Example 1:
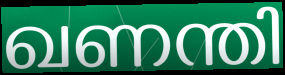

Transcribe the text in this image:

ഖണന്തി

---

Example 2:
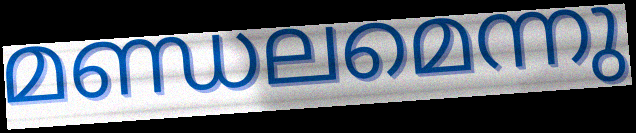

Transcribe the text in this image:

മണ്ഡലമെന്നു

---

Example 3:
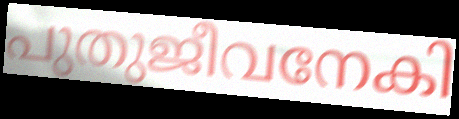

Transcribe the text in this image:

പുതുജീവനേകി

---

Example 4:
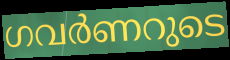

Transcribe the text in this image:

ഗവർണറുടെ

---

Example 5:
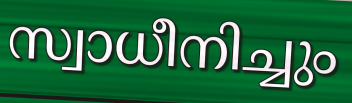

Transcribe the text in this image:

സ്വാധീനിച്ചും